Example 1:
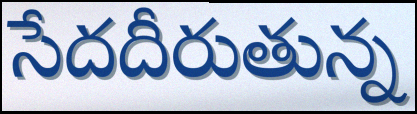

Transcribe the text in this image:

సేదదీరుతున్న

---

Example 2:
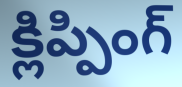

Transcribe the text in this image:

క్లిప్పింగ్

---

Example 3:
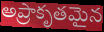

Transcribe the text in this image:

అప్రాకృతమైన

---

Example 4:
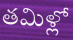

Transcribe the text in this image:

తమిళ్లో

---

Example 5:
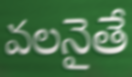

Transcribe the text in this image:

వలనైతే